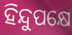
ହିନ୍ଦୁପକ୍ଷେ